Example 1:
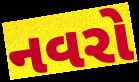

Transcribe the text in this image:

નવરો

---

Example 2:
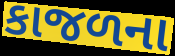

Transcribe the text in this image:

કાજળના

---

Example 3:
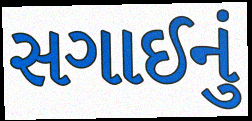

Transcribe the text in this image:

સગાઈનું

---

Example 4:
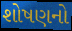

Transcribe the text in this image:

શોષણનો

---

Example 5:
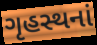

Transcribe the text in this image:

ગૃહસ્થનાં